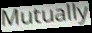
Mutually